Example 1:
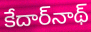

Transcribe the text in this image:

కేదార్‌నాథ్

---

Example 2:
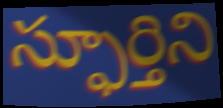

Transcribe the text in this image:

స్ఫూర్తిని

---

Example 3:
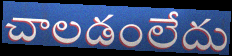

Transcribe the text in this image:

చాలడంలేదు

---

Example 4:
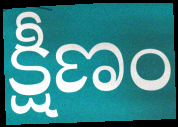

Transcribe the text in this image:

క్షీణం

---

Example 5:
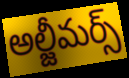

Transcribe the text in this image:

అల్జీమర్స్